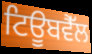
ਟਿਊਬਵੈੱਲ